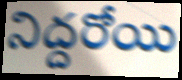
నిద్దరోయి